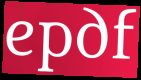
epdf